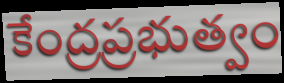
కేంద్రప్రభుత్వం